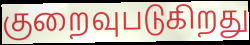
குறைவுபடுகிறது